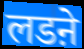
लडऩे